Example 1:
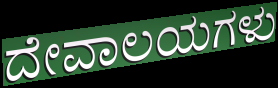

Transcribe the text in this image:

ದೇವಾಲಯಗಳು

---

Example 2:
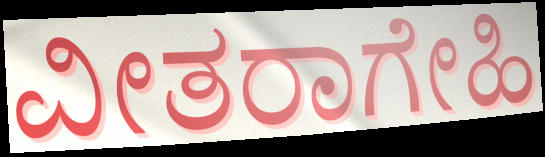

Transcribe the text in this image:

ವೀತರಾಗೇಹಿ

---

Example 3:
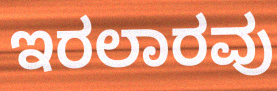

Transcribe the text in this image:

ಇರಲಾರವು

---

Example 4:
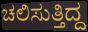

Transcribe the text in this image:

ಚಲಿಸುತ್ತಿದ್ದ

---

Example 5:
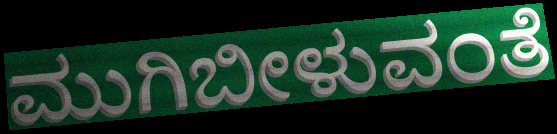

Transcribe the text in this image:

ಮುಗಿಬೀಳುವಂತೆ